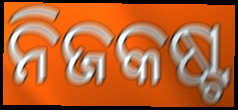
ନିଜକଷ୍ଟ